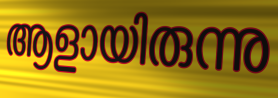
ആളായിരുന്നു